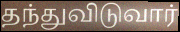
தந்துவிடுவார்